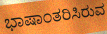
ಭಾಷಾಂತರಿಸಿರುವ